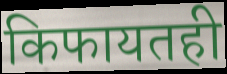
किफायतही